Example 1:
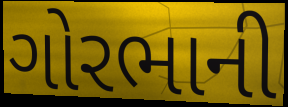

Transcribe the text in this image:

ગોરભાની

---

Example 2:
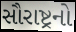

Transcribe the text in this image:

સૌરાષ્ટ્રનો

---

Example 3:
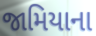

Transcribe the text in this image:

જામિયાના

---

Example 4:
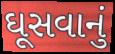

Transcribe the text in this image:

ઘૂસવાનું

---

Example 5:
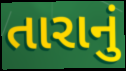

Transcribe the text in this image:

તારાનું